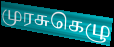
முரசுகெழு